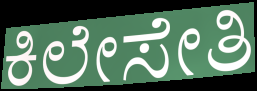
ಕಿಲೇಸೇತಿ